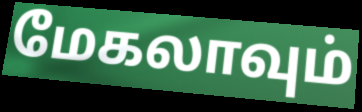
மேகலாவும்